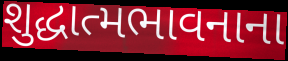
શુદ્ધાત્મભાવનાના